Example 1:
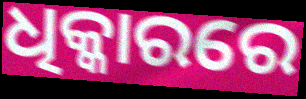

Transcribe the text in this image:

ଧିକ୍କାରରେ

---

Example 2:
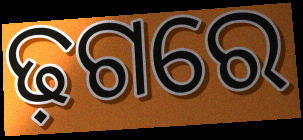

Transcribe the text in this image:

ଢ଼ଗରେ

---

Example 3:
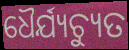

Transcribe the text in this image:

ଧୈର୍ଯ୍ୟଚ୍ୟୁତ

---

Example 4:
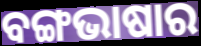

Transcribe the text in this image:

ବଙ୍ଗଭାଷାର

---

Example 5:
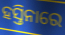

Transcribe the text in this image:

ହସ୍ତିନାରେ